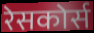
रेसकोर्स